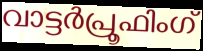
വാട്ടർപ്രൂഫിംഗ്